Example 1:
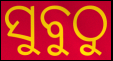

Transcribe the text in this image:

ସୁବୁଠୁ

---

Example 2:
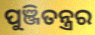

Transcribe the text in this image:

ପୁଞ୍ଜିତନ୍ତ୍ରର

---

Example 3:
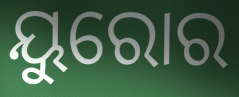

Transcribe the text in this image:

ୟୁରୋର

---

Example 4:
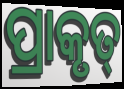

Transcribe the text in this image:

ପ୍ରାକୃତ୍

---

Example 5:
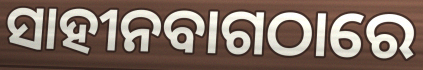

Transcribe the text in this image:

ସାହୀନବାଗଠାରେ